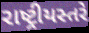
રાષ્ટ્રીયસ્તરે